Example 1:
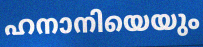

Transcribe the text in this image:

ഹനാനിയെയും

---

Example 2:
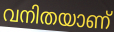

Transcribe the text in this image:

വനിതയാണ്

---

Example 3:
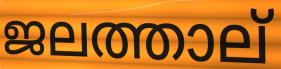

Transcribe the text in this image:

ജലത്താല്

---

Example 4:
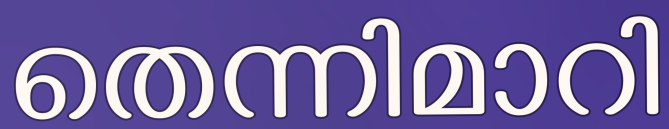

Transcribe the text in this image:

തെന്നിമാറി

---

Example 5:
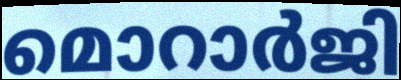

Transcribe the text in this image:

മൊറാർജി